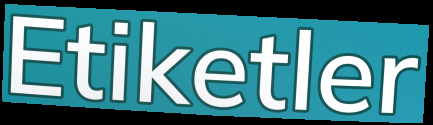
Etiketler